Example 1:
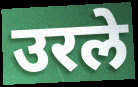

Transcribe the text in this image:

उरले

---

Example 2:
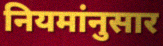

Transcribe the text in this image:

नियमांनुसार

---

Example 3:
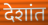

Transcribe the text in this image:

देशांत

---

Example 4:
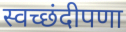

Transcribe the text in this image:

स्वच्छंदीपणा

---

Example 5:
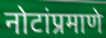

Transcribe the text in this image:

नोटांप्रमाणे